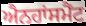
ਐਨਹਾਂਸਮੈਂਟ